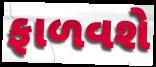
ફાળવશે